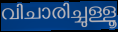
വിചാരിച്ചുള്ളൂ